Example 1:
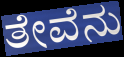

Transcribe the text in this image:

ತೇವೆನು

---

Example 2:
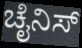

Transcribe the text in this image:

ಚೈನಿಸ್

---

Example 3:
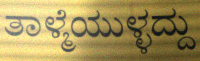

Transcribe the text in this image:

ತಾಳ್ಮೆಯುಳ್ಳದ್ದು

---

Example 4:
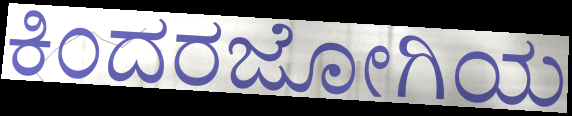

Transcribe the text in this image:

ಕಿಂದರಜೋಗಿಯ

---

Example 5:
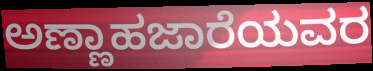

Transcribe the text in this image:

ಅಣ್ಣಾಹಜಾರೆಯವರ